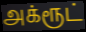
அக்ரூட்